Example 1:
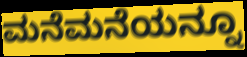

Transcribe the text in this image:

ಮನೆಮನೆಯನ್ನೂ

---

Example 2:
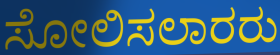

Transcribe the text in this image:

ಸೋಲಿಸಲಾರರು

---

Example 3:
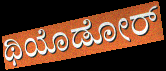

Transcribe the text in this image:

ಥಿಯೊಡೋರ್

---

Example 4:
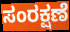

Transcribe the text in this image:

ಸಂರಕ್ಷಣೆ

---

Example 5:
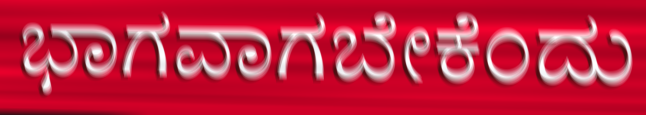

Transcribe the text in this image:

ಭಾಗವಾಗಬೇಕೆಂದು